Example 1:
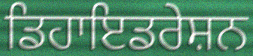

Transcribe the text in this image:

ਡਿਹਾਇਡਰੇਸ਼ਨ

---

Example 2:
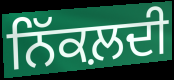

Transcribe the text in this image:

ਨਿੱਕਲ਼ਦੀ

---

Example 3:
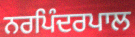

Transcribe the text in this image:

ਨਰਪਿੰਦਰਪਾਲ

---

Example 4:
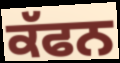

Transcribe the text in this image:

ਕੱਫਨ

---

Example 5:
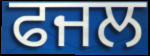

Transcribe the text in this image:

ਫਜਲ